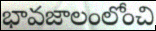
భావజాలంలోంచి